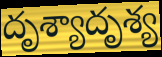
దృశ్యాదృశ్య